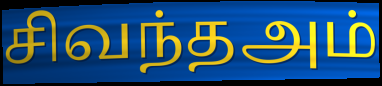
சிவந்தஅம்